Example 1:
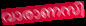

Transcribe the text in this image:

വാരാണസി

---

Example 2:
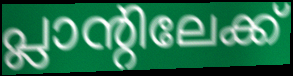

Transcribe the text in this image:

പ്ലാന്റിലേക്ക്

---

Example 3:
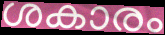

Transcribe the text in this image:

ശകാരം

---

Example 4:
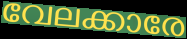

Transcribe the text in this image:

വേലക്കാരേ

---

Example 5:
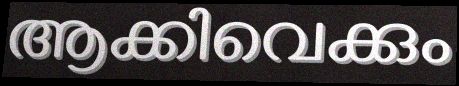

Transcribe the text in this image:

ആക്കിവെക്കും